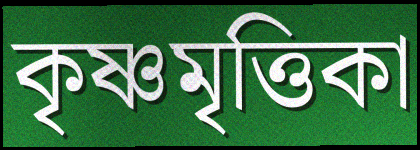
কৃষ্ণমৃত্তিকা